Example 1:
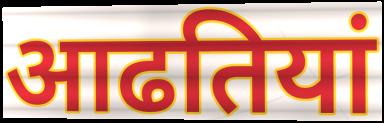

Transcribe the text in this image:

आढतियां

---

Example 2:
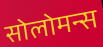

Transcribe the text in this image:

सोलोमन्स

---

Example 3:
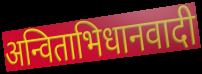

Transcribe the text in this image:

अन्विताभिधानवादी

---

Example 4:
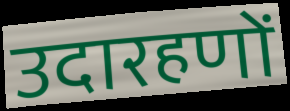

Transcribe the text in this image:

उदारहणों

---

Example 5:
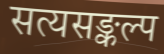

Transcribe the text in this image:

सत्यसङ्कल्प